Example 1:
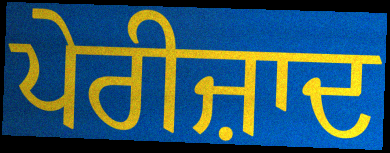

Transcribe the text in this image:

ਪੇਰੀਜ਼ਾਦ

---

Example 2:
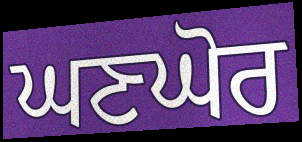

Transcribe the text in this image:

ਘਣਘੋਰ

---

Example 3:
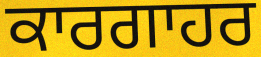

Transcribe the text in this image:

ਕਾਰਗਾਹਰ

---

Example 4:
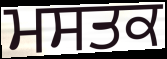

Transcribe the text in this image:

ਮਸਤਕ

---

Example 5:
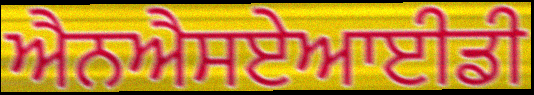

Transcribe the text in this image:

ਐਨਐਸਏਆਈਡੀ